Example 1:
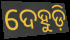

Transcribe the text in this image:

ଦେହୁଡ଼ି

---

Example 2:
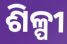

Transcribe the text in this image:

ଶିଳ୍ପୀ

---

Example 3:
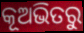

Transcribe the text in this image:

କୂଅଭିତରୁ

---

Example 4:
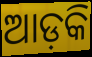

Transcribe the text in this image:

ଆଡ଼କି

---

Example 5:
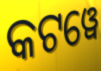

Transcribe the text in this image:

କଟୱେ